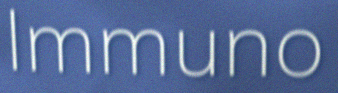
Immuno